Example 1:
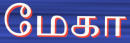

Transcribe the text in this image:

மேகா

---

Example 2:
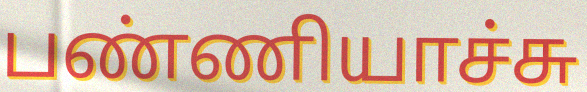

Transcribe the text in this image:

பண்ணியாச்சு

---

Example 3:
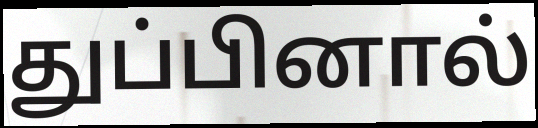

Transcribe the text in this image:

துப்பினால்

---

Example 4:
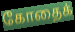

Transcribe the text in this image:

கோதைக்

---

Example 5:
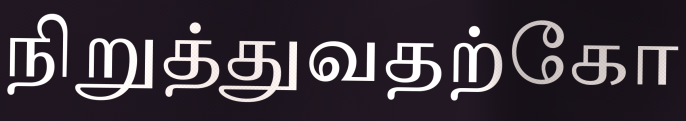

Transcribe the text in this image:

நிறுத்துவதற்கோ